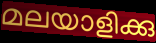
മലയാളിക്കു